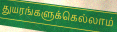
துயரங்களுக்கெல்லாம்